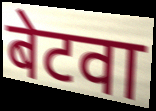
बेटवा